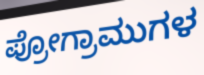
ಪ್ರೋಗ್ರಾಮುಗಳ